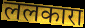
ललकारा